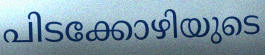
പിടക്കോഴിയുടെ